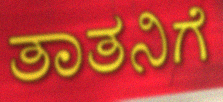
ತಾತನಿಗೆ